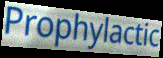
Prophylactic